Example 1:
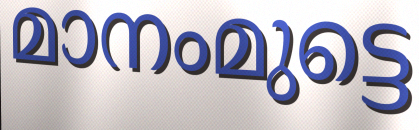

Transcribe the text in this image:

മാനംമുട്ടെ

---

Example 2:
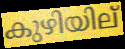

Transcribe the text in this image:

കുഴിയില്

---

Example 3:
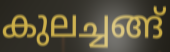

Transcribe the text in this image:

കുലച്ചങ്ങ്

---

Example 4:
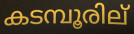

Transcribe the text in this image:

കടമ്പൂരില്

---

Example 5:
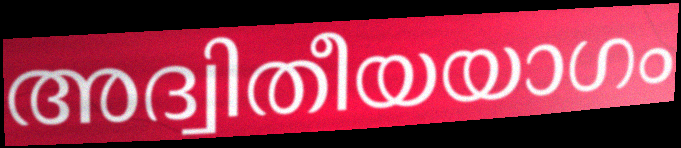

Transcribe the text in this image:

അദ്വിതീയയാഗം